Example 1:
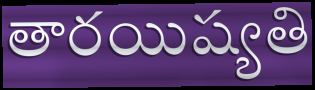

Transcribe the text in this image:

తారయిష్యతి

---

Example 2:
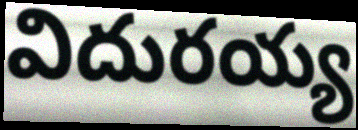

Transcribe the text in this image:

విదురయ్య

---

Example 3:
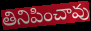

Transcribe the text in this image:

తినిపించావు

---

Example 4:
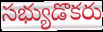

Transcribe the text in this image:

సభ్యుడొకరు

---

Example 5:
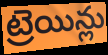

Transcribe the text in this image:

ట్రెయిన్లు